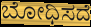
ಬೋಧಿಸದೆ